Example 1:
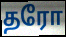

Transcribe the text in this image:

தரோ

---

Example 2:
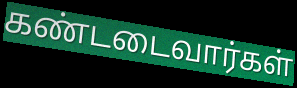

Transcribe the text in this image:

கண்டடைவார்கள்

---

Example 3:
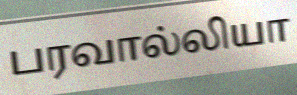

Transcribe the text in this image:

பரவால்லியா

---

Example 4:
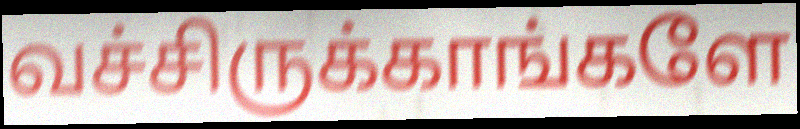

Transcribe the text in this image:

வச்சிருக்காங்களே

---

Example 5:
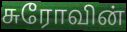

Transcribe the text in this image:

சுரோவின்